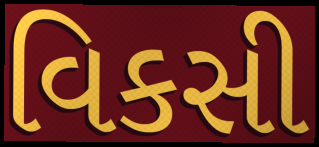
વિકસી